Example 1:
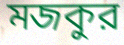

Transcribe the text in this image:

মজকুর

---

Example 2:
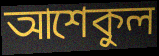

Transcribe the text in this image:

আশেকুল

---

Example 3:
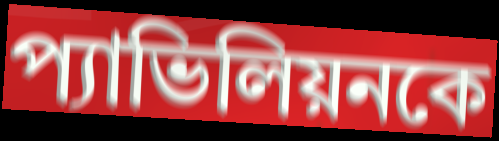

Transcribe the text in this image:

প্যাভিলিয়নকে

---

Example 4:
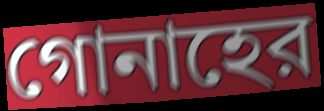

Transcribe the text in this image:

গোনাহের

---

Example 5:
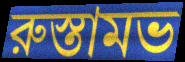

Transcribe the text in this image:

রুস্তামভ